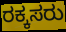
ರಕ್ಕಸರು